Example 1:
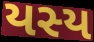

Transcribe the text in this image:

યસ્ય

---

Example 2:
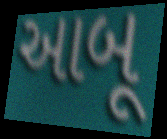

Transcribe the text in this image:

આબૂ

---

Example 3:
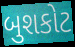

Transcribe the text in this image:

બુશકોટ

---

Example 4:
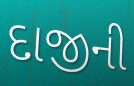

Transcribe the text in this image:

દાજીની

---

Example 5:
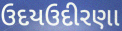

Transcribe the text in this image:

ઉદયઉદીરણા